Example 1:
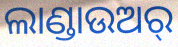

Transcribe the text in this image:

ଲାଣ୍ଡାଉଅର୍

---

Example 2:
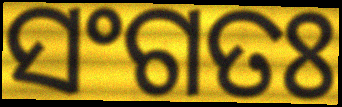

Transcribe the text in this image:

ସଂଗତଃ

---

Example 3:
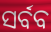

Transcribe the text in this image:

ସର୍ବବ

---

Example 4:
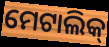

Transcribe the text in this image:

ମେଟାଲିକ୍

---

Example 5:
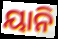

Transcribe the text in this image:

ୟାନି